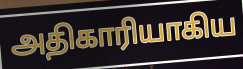
அதிகாரியாகிய